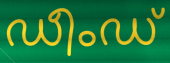
ഡീംഡ്